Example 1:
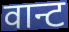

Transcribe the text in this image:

वान्ट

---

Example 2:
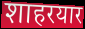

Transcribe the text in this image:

शाहरयार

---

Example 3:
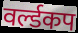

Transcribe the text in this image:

वर्ल्डकप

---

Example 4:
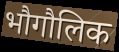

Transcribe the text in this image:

भौगौलिक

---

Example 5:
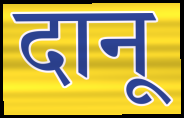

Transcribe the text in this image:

दानू